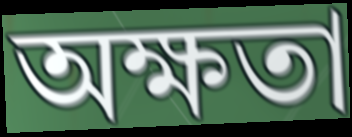
অক্ষতা